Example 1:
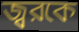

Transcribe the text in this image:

জ্বরকে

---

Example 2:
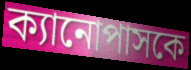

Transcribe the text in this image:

ক্যানোপাসকে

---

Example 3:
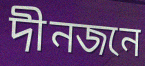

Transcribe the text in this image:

দীনজনে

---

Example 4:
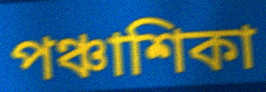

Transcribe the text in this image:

পঞ্চাশিকা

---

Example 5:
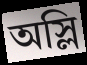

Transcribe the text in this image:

অস্লি